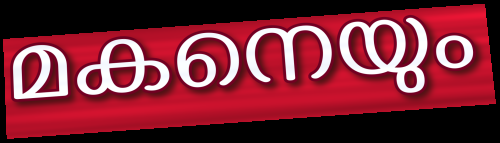
മകനെയും